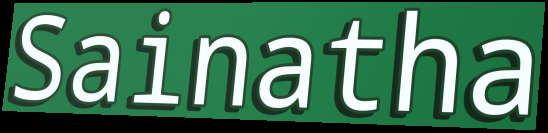
Sainatha